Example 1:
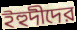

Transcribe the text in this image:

ইহুদীদের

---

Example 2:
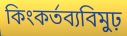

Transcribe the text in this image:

কিংকর্তব্যবিমুঢ়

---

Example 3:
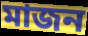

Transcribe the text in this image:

মাজন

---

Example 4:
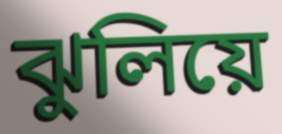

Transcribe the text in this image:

ঝুলিয়ে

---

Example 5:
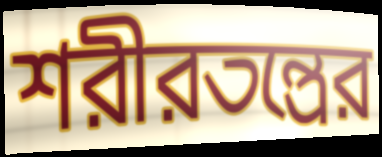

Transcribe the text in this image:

শরীরতন্ত্রের